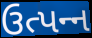
ઉત્પન્‍ન